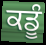
ਕਡੂੰ